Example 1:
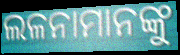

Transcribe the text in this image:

ଲଳନାମାନଙ୍କୁ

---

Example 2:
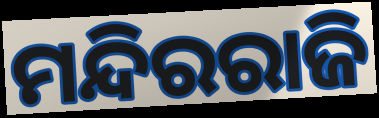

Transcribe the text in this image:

ମନ୍ଦିରରାଜି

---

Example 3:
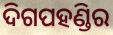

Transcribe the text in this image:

ଦିଗପହଣ୍ଡିର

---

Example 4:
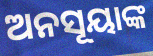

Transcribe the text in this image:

ଅନସୂୟାଙ୍କ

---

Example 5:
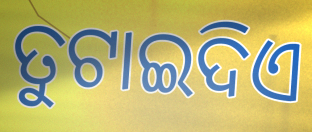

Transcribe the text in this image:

ତୁଟାଇଦିଏ